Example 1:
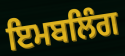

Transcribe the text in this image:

ਇਮਬਲਿੰਗ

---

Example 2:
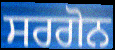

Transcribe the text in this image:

ਸਰਗੋਨ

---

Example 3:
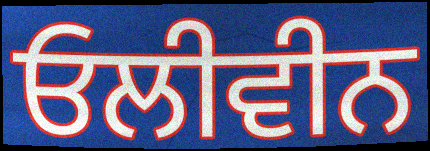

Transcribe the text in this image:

ਓਲੀਵੀਨ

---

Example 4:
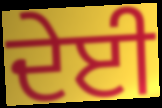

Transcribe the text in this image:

ਦੇਈ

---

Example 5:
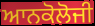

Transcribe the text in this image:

ਆਨਕੋਲੋਜੀ